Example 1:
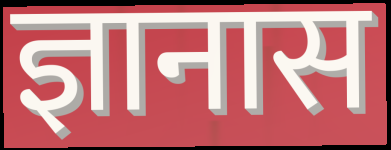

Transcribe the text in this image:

ज्ञानास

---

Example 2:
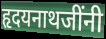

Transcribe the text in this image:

हृदयनाथजींनी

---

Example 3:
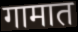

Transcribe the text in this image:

गामात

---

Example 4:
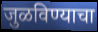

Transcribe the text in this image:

जुळविण्याचा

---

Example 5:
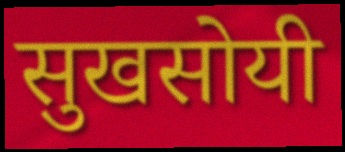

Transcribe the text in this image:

सुखसोयी